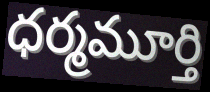
ధర్మమూర్తి